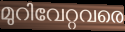
മുറിവേറ്റവരെ